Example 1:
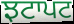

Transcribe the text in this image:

ਝਟਾਪਟ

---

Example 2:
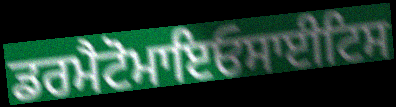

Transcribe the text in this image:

ਡਰਮੈਟੋਮਾਇਓਸਾਈਟਿਸ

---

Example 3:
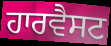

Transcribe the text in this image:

ਹਾਰਵੈਸਟ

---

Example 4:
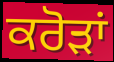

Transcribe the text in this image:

ਕਰੋੜਾਂ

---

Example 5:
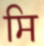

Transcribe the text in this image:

ਸਿ